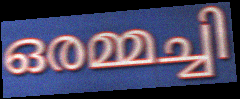
ഒരമ്മച്ചി